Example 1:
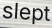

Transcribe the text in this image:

slept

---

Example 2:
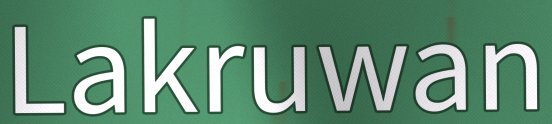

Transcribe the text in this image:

Lakruwan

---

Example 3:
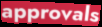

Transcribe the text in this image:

approvals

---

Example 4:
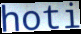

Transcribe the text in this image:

hoti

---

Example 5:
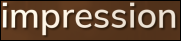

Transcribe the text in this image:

impression